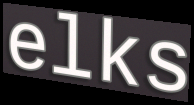
elks